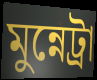
মুন্নেট্ৰা